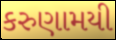
કરુણામયી